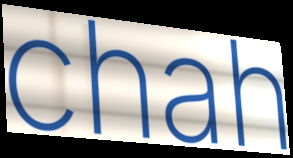
chah